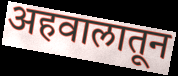
अहवालातून